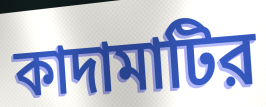
কাদামাটির